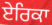
ਏਰਿਕਾ